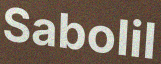
Sabolil